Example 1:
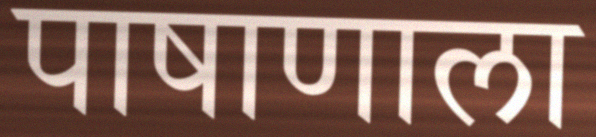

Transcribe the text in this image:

पाषाणाला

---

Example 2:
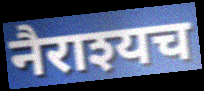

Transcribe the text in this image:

नैराश्यच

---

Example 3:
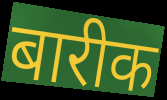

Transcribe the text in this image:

बारीक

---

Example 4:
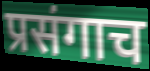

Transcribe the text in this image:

प्रसंगाच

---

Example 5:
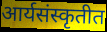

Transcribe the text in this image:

आर्यसंस्कृतीत